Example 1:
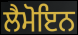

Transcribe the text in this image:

ਲੈਮੋਇਨ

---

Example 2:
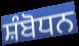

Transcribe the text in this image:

ਸ਼ੰਬੋਧਨ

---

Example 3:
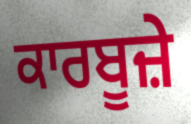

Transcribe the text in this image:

ਕਾਰਬੂਜ਼ੇ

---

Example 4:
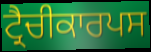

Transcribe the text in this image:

ਟ੍ਰੈਚੀਕਾਰਪਸ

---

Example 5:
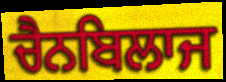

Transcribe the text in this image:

ਚੈਨਬਿਲਾਜ